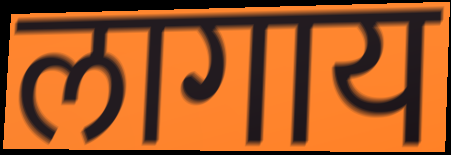
लागाय